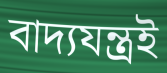
বাদ্যযন্ত্ৰই